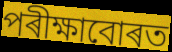
পৰীক্ষাবোৰত